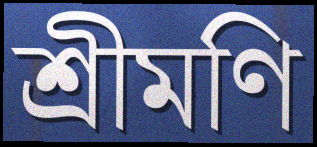
শ্রীমণি